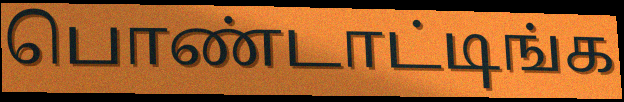
பொண்டாட்டிங்க